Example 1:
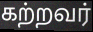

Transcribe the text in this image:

கற்றவர்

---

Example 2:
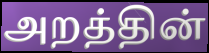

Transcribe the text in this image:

அறத்தின்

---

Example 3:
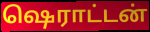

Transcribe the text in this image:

ஷெராட்டன்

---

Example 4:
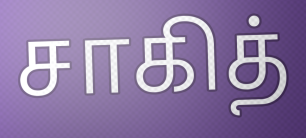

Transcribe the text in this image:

சாகித்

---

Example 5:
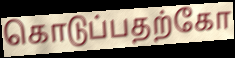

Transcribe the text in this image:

கொடுப்பதற்கோ